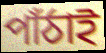
পাঁঠাই